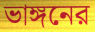
ভাঙ্গনের